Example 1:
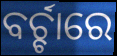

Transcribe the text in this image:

ବର୍ଚ୍ଚାରେ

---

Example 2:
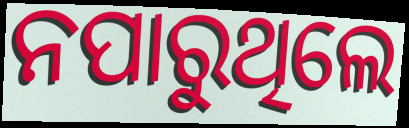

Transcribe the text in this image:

ନପାରୁଥିଲେ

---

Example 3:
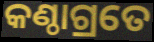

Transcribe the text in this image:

କଣ୍ଠାଗ୍ରତେ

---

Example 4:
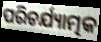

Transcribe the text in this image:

ପରିଚର୍ଯ୍ୟାତ୍ମକ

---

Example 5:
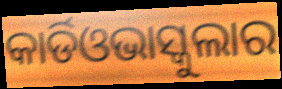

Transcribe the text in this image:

କାର୍ଡିଓଭାସ୍କୁଲାର